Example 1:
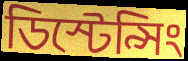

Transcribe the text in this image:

ডিস্টেন্সিং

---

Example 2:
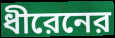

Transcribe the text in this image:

ধীরেনের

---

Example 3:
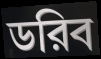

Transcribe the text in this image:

ডরিব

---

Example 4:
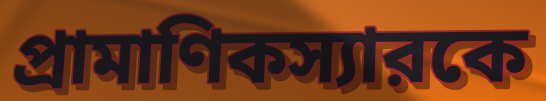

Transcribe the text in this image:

প্রামাণিকস্যারকে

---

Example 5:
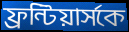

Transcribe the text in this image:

ফ্রন্টিয়ার্সকে